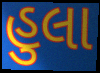
હુલા